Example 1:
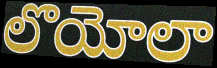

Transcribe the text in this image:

లొయోలా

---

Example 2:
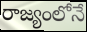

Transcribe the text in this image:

రాజ్యంలోనే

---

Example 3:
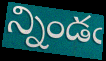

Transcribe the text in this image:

న్నిండఁ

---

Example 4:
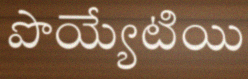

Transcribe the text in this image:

పొయ్యేటియి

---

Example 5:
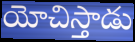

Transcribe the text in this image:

యోచిస్తాడు